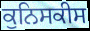
ਕੁਨਿਸਕੀਸ